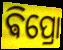
ଵିପ୍ରୋ